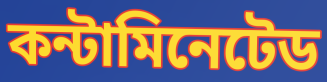
কন্টামিনেটেড